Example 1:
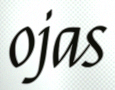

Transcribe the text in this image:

ojas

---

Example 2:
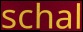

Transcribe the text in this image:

schal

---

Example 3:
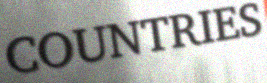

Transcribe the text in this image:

COUNTRIES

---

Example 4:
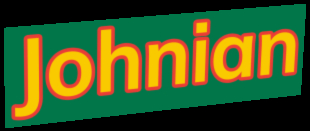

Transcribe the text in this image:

Johnian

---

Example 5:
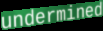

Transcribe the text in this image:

undermined